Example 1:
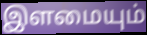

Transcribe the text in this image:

இளமையும்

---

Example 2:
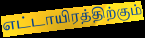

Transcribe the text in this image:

எட்டாயிரத்திற்கும்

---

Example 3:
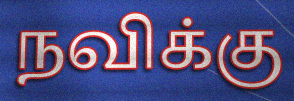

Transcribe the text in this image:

நவிக்கு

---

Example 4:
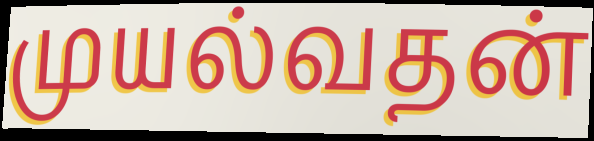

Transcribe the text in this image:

முயல்வதன்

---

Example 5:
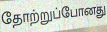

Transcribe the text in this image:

தோற்றுப்போனது